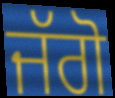
ਜੱਗੋ